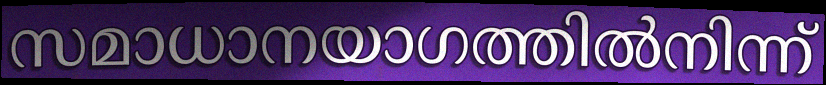
സമാധാനയാഗത്തിൽനിന്ന്